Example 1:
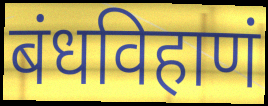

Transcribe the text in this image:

बंधविहाणं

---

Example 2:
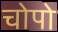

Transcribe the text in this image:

चोपो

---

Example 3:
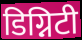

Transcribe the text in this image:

डिग्निटी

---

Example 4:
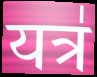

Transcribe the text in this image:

यत्र॑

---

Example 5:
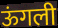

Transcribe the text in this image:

ऊंगली